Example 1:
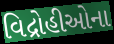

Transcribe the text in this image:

વિદ્રોહીઓના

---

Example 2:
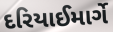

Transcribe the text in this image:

દરિયાઈમાર્ગે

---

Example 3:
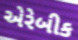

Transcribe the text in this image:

એરેબીક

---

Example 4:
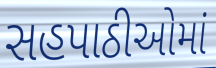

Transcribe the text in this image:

સહપાઠીઓમાં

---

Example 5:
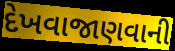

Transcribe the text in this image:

દેખવાજાણવાની